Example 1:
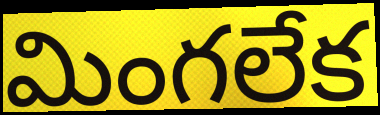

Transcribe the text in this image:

మింగలేక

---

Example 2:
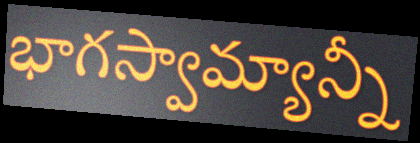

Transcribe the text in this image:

భాగస్వామ్యాన్నీ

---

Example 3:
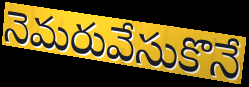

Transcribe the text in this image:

నెమరువేసుకొనే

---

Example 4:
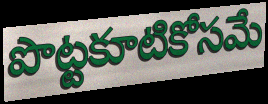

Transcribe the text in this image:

పొట్టకూటికోసమే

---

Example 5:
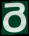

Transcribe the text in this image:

రె